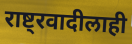
राष्ट्रवादीलाही